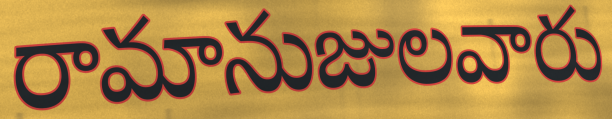
రామానుజులవారు